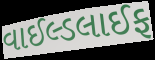
વાઈલ્ડલાઈફ